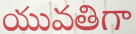
యువతిగా